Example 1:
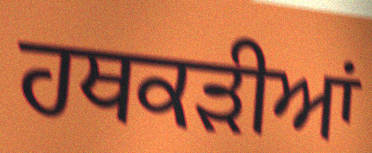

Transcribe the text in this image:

ਹਥਕੜੀਆਂ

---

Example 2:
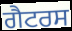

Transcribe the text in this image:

ਗੈਟਰਸ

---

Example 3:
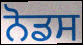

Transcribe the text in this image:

ਨੋਡਸ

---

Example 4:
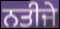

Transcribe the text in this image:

ਨਤੀਜੇ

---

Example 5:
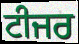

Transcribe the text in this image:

ਟੀਜਰ